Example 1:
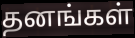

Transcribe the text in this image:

தனங்கள்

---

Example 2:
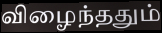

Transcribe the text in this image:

விழைந்ததும்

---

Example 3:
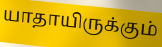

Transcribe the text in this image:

யாதாயிருக்கும்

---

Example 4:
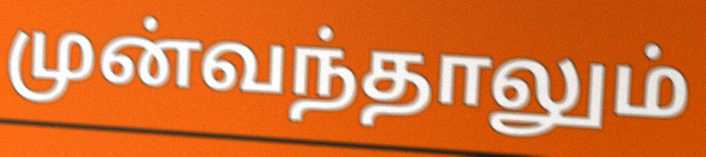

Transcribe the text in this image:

முன்வந்தாலும்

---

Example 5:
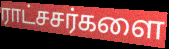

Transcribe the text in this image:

ராட்சசர்களை